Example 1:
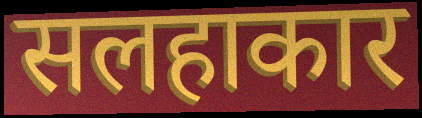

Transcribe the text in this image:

सलहाकार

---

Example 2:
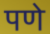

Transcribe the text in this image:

पणे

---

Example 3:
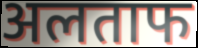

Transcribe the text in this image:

अलताफ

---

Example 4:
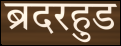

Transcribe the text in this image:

ब्रदरहुड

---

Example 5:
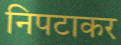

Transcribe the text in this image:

निपटाकर